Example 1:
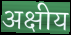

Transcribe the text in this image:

अक्षीय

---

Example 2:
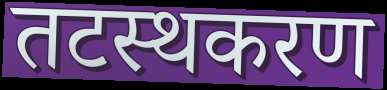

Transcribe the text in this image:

तटस्थकरण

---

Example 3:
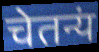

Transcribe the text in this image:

चेतन्यं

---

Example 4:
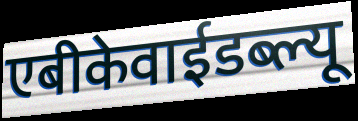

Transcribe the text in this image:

एबीकेवाईडब्ल्यू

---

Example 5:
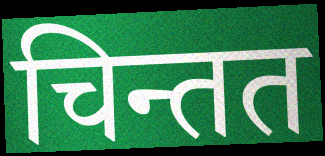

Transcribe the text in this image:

चिन्तत